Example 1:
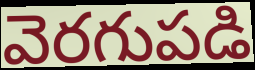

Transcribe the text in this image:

వెరగుపడి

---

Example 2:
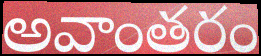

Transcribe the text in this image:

అవాంతరం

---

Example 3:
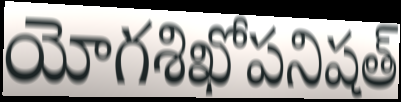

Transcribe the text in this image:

యోగశిఖోపనిషత్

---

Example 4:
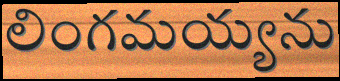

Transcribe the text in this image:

లింగమయ్యను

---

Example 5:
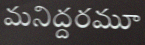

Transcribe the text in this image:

మనిద్దరమూ